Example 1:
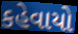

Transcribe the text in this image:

કહેવાયો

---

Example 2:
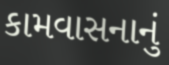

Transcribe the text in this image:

કામવાસનાનું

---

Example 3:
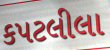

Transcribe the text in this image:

કપટલીલા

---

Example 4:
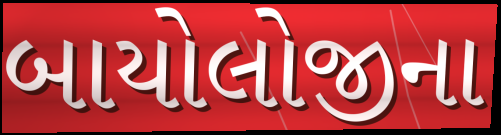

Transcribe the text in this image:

બાયોલોજીના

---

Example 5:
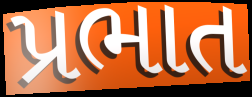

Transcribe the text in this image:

પ્રભાત